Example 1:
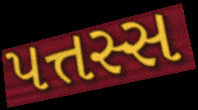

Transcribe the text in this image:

પત્તસ્સ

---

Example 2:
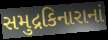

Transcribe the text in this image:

સમુદ્રકિનારાનાં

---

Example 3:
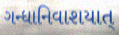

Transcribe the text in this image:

ગન્ધાનિવાશયાત્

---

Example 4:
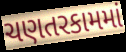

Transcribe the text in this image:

ચણતરકામમાં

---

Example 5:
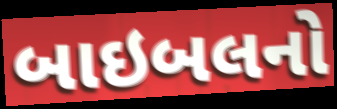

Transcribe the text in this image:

બાઇબલનો